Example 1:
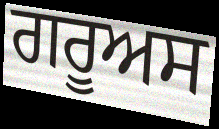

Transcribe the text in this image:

ਗਰੂਅਸ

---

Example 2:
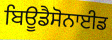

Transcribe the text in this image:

ਬਿਊਡੈਸੋਨਾਈਡ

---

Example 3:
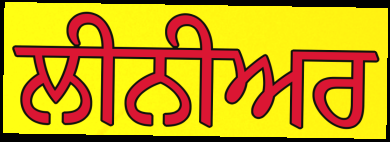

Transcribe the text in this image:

ਲੀਨੀਅਰ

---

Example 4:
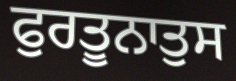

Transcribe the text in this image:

ਫੁਰਤੂਨਾਤੁਸ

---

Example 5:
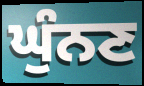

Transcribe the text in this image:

ਘੁੰਨਣ